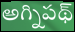
అగ్నిపథ్